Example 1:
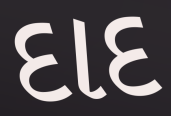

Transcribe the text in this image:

દાદ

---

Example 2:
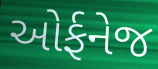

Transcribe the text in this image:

ઓર્ફનેજ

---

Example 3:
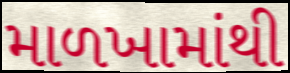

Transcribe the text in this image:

માળખામાંથી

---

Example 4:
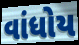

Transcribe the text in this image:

વાંધોય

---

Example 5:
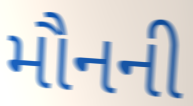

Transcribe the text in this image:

મૌનની